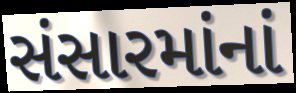
સંસારમાંનાં